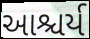
આશ્ચર્ય